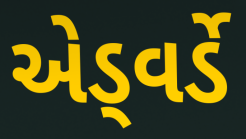
એડ્વર્ડે